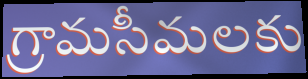
గ్రామసీమలకు